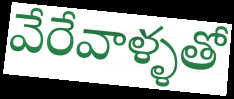
వేరేవాళ్ళతో